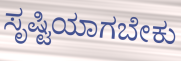
ಸೃಷ್ಟಿಯಾಗಬೇಕು